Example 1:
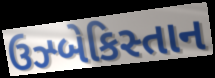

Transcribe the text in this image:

ઉઝ્બેકિસ્તાન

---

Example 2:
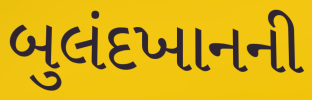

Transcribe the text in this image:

બુલંદખાનની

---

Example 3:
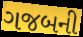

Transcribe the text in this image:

ગજબની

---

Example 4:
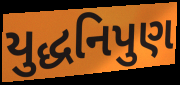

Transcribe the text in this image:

યુદ્ધનિપુણ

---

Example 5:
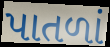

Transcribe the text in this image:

પાતળાં